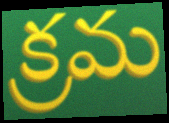
క్రమ